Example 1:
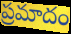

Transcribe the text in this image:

ప్రమాదం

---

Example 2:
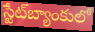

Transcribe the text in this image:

స్టేట్‌బ్యాంకులో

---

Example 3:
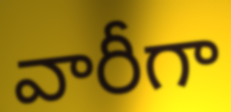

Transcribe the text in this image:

వారీగా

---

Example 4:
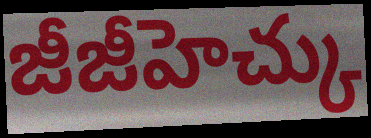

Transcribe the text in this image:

జీజీహెచ్కు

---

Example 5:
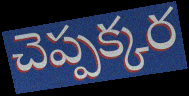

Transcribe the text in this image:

చెప్పక్కర